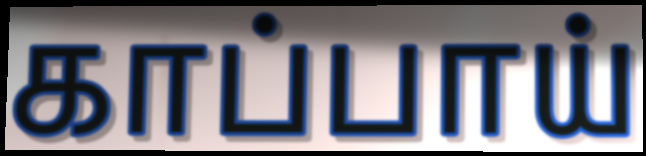
காப்பாய்